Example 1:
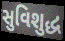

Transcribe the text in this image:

સુવિશુદ્ધ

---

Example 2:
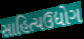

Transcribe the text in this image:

સાહિત્યઉદ્યોગ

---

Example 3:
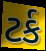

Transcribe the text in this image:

ટર્ક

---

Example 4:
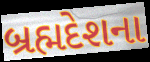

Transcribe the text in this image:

બ્રહ્મદેશના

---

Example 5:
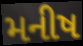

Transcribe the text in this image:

મનીષ